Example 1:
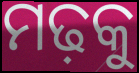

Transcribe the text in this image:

ମଢ଼କୁ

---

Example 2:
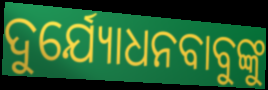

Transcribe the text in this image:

ଦୁର୍ଯ୍ୟୋଧନବାବୁଙ୍କୁ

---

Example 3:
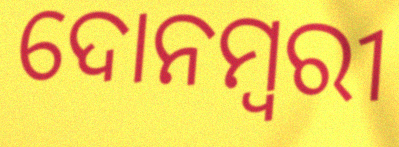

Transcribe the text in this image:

ଦୋନମ୍ବରୀ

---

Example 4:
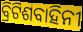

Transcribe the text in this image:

ବ୍ରିଟିଶବାହିନୀ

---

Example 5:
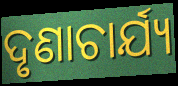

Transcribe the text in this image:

ଦୃଣାଚାର୍ଯ୍ୟ